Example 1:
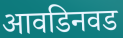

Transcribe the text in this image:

आवडिनवड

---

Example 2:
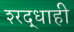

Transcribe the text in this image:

श्रद्धाही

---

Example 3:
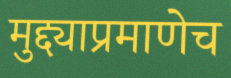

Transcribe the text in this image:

मुद्द्याप्रमाणेच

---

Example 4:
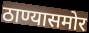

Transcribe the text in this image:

ठाण्यासमोर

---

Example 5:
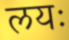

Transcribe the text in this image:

लयः